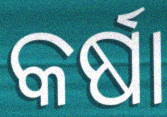
କର୍ଷା